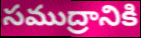
సముద్రానికి